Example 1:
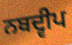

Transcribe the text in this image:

ਨਬਦ੍ਵੀਪ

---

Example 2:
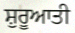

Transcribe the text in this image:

ਸ਼ੁਰੂਆਤੀ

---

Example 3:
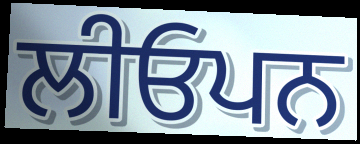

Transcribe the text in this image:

ਲੀਓਪਨ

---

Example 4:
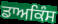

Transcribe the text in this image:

ਡਾਅਕਿੰਸ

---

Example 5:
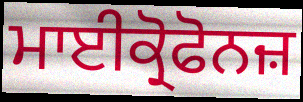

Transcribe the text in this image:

ਮਾਈਕ੍ਰੋਫੋਨਜ਼